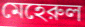
মেহেরুল